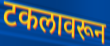
टकलावरून